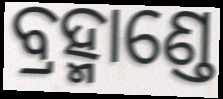
ବ୍ରହ୍ମାଣ୍ଡେ